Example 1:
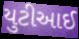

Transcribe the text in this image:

યુટીઆઈ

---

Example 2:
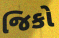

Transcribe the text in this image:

જિકો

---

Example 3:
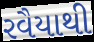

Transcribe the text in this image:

રવૈયાથી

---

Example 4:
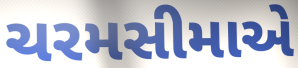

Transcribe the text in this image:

ચરમસીમાએ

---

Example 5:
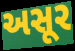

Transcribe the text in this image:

અસૂર